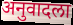
अनुवादला